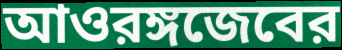
আওরঙ্গজেবের